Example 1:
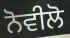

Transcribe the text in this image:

ਨੋਵੀਲੋ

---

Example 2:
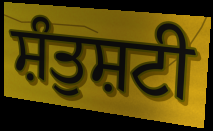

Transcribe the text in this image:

ਸ਼ੰਤੁਸ਼ਟੀ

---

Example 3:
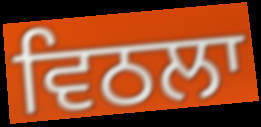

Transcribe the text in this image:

ਵਿਠਲਾ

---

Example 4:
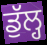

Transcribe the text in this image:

ਡੁੱਲ੍ਹ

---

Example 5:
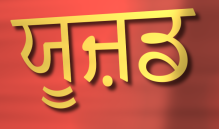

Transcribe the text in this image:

ਯੂਜ਼ਡ